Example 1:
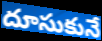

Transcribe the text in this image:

దూసుకునే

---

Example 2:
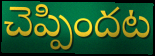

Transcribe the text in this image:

చెప్పిందట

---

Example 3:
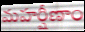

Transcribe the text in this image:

మహర్షీణాం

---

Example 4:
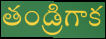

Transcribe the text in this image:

తండ్రిగాక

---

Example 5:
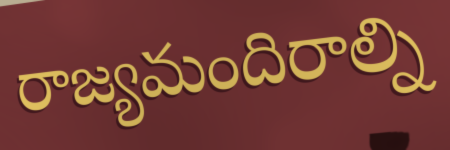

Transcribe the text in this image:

రాజ్యమందిరాల్ని